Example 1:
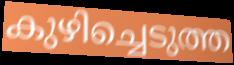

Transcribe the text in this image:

കുഴിച്ചെടുത്ത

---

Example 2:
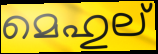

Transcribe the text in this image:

മെഹുല്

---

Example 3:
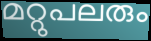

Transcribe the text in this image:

മറ്റുപലരും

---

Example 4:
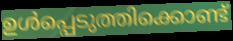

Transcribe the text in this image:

ഉൾപ്പെടുത്തിക്കൊണ്ട്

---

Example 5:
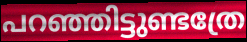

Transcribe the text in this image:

പറഞ്ഞിട്ടുണ്ടത്രേ